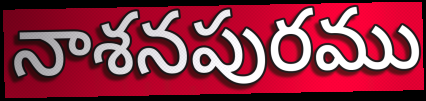
నాశనపురము